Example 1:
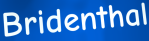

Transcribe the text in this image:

Bridenthal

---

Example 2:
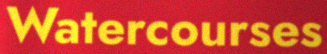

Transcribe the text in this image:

Watercourses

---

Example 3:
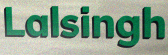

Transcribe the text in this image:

Lalsingh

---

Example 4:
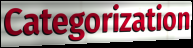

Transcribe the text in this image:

Categorization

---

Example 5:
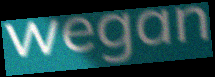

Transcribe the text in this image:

wegan